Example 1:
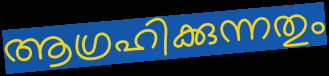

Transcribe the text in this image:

ആഗ്രഹിക്കുന്നതും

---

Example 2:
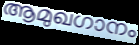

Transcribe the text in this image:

ആമുഖഗാനം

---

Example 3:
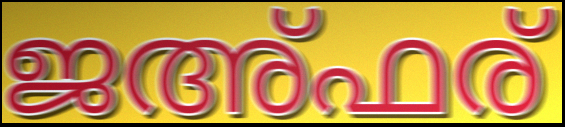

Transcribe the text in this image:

ജഅ്ഫര്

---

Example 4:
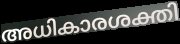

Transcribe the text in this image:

അധികാരശക്തി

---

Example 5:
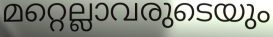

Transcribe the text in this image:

മറ്റെല്ലാവരുടെയും